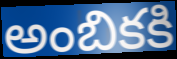
అంబికకి